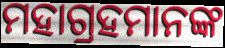
ମହାଗ୍ରହମାନଙ୍କ